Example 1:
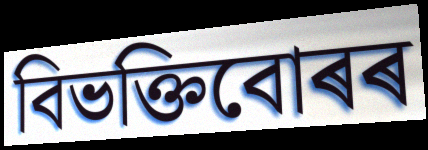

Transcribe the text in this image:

বিভক্তিবোৰৰ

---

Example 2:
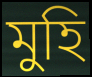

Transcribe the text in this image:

মুহি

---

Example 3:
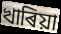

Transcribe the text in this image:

খাৰিয়া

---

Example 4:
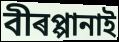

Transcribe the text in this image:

বীৰপ্পানাই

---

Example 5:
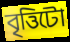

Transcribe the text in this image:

বৃত্তিটো